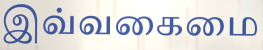
இவ்வகைமை